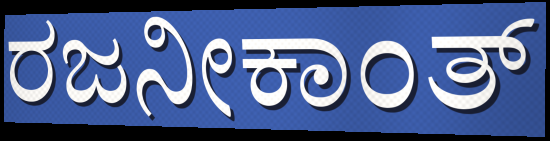
ರಜನೀಕಾಂತ್